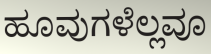
ಹೂವುಗಳೆಲ್ಲವೂ